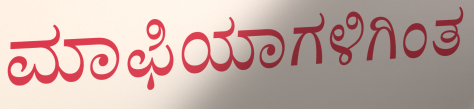
ಮಾಫಿಯಾಗಳಿಗಿಂತ